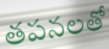
తపనలతో